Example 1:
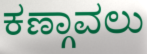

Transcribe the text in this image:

ಕಣ್ಗಾವಲು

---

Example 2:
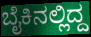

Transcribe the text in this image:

ಬೈಕಿನಲ್ಲಿದ್ದ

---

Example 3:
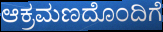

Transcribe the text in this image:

ಆಕ್ರಮಣದೊಂದಿಗೆ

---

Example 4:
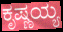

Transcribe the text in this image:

ಕೃಷ್ಣಯ್ಯ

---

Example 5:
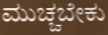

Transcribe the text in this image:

ಮುಚ್ಚಬೇಕು